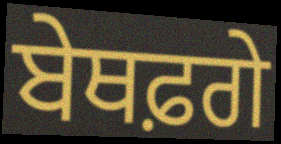
ਬੇਥਫ਼ਗੇ